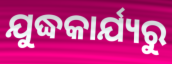
ଯୁଦ୍ଧକାର୍ଯ୍ୟରୁ